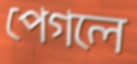
পেগলে